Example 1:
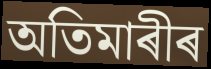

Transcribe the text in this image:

অতিমাৰীৰ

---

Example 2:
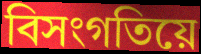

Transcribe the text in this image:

বিসংগতিয়ে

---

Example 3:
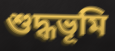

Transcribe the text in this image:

শুদ্ধভূমি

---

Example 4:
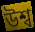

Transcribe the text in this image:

উশ্ব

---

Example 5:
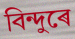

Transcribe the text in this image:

বিন্দুৰে